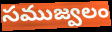
సముజ్వలం